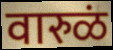
वारुळं